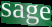
sage